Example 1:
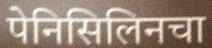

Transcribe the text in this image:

पेनिसिलिनचा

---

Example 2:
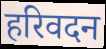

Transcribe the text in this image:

हरिवदन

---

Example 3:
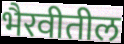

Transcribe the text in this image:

भैरवीतील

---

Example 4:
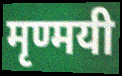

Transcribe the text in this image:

मृण्मयी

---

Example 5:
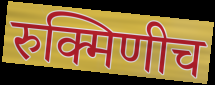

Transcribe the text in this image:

रुक्मिणीच